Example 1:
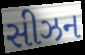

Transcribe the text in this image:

સીઝન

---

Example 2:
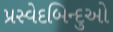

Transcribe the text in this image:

પ્રસ્વેદબિન્દુઓ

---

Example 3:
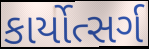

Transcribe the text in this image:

કાર્યોત્સર્ગ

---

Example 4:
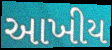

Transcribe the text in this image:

આખીય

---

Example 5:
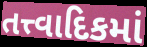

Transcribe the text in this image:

તત્ત્વાદિકમાં